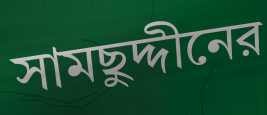
সামছুদ্দীনের